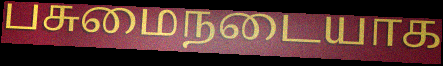
பசுமைநடையாக